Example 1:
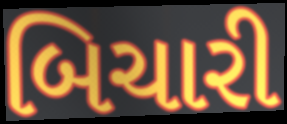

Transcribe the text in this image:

બિચારી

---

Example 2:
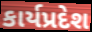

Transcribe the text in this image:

કાર્યપ્રદેશ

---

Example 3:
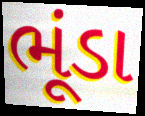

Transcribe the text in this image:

ભૂંડા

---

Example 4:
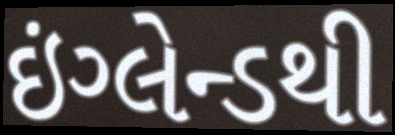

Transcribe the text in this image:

ઇંગ્લેન્ડથી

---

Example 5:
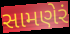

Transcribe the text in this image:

સામણેરં